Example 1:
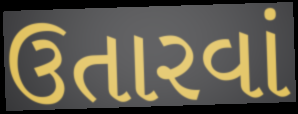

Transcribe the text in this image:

ઉતારવાં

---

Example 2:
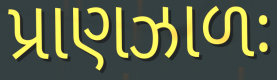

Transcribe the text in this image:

પ્રાણઝાળઃ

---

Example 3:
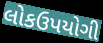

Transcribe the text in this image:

લોકઉપયોગી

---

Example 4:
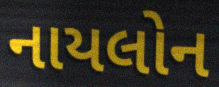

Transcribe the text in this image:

નાયલોન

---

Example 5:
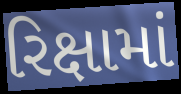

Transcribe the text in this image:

રિક્ષામાં